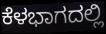
ಕೆಳಭಾಗದಲ್ಲಿ